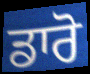
ਡਾਰੋ